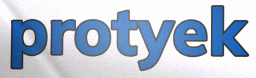
protyek